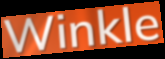
Winkle